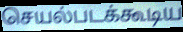
செயல்படக்கூடிய